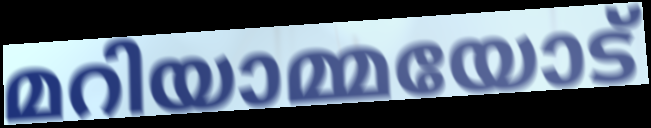
മറിയാമ്മയോട്